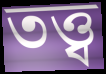
তত্ত্ব